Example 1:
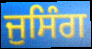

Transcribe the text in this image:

ਜੁਸਿੰਗ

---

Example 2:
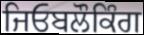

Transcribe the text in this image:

ਜਿਓਬਲੌਕਿੰਗ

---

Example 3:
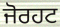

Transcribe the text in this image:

ਜੋਰਹਟ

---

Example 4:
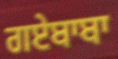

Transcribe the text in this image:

ਗਏਬਾਬਾ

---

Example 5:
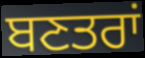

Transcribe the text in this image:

ਬਣਤਰਾਂ